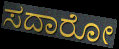
ಸದಾರೋ